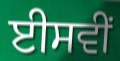
ਈਸਵੀਂ